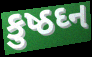
કુષ્ઠઘ્ન